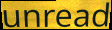
unread